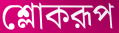
শ্লোকরূপ